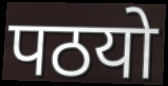
पठयो